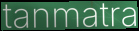
tanmatra